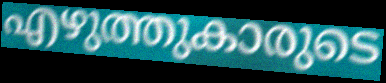
എഴുത്തുകാരുടെ